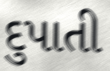
દુપાતી